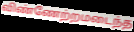
விண்ணேற்றமடைந்த